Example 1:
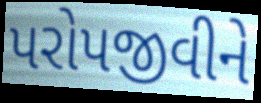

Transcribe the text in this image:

પરોપજીવીને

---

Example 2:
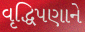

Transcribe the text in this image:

વૃદ્ધિપણાને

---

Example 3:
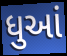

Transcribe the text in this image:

ધુઆં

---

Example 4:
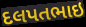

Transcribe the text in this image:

દલપતભાઇ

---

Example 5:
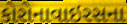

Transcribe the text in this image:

કોરોનાવાઇરસના